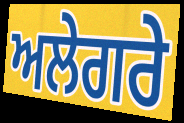
ਅਲੇਗਰੇ